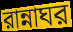
রান্নাঘর